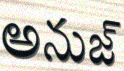
అనుజ్